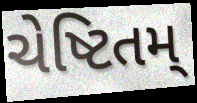
ચેષ્ટિતમ્